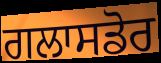
ਗਲਾਸਡੋਰ